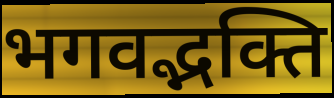
भगवद्भक्ति